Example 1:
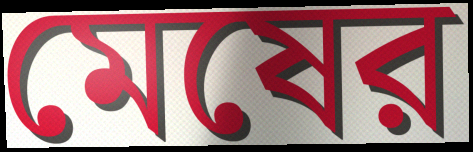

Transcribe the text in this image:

মেষের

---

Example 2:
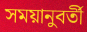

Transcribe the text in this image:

সময়ানুবর্তী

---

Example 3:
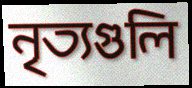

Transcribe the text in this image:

নৃত্যগুলি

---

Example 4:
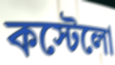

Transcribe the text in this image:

কস্টেলো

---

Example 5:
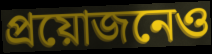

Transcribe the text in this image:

প্রয়োজনেও